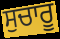
ਸੁਚਾਰੂ